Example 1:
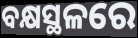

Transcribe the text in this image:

ବକ୍ଷସ୍ଥଳରେ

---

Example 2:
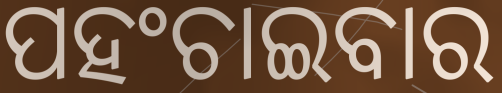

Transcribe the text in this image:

ପହଂଚାଇବାର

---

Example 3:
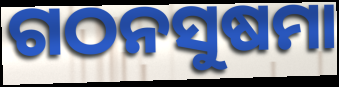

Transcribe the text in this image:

ଗଠନସୁଷମା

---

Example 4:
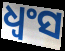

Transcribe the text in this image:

ଧ୍ଵଂସ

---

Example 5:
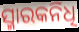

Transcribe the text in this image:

ସ୍ମାରକନିଧି